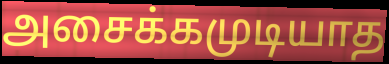
அசைக்கமுடியாத